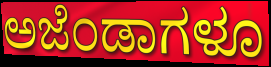
ಅಜೆಂಡಾಗಳೂ